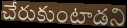
చేరుకుంటాడని